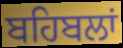
ਬਹਿਬਲਾਂ